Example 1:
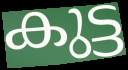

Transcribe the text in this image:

കുട്ട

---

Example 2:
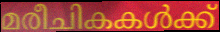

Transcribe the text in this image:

മരീചികകൾക്ക്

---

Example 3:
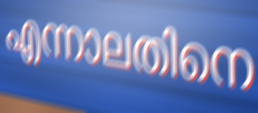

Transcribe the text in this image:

എന്നാലതിനെ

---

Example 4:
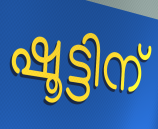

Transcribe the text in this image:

ഷൂട്ടിന്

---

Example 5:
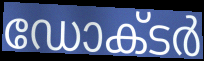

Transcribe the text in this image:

ഡോക്‌ടർ